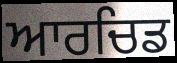
ਆਰਚਿਡ